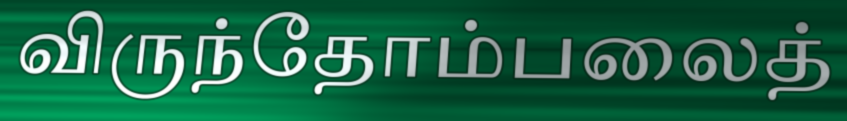
விருந்தோம்பலைத்